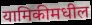
यामिकीमधील